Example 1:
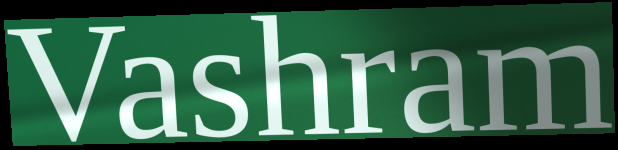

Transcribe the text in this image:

Vashram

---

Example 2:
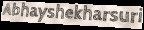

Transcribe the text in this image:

Abhayshekharsuri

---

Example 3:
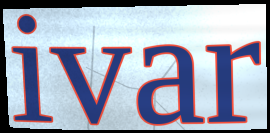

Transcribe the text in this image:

ivar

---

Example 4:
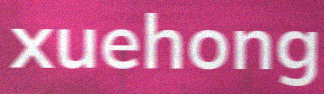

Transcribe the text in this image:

xuehong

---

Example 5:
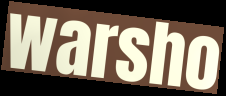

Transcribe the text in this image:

warsho